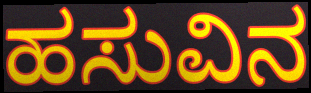
ಹಸುವಿನ